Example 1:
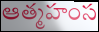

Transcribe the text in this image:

ఆత్మహంస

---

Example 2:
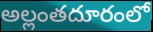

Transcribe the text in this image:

అల్లంతదూరంలో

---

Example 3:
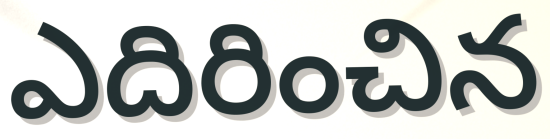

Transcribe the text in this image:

ఎదిరించిన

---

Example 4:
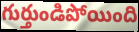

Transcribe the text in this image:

గుర్తుండిపోయింది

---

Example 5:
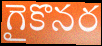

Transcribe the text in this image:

గైకొనర